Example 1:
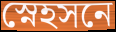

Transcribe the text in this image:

স্নেহসনে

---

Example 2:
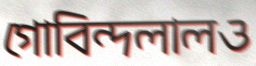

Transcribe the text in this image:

গোবিন্দলালও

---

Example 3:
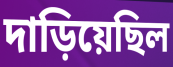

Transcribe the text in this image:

দাড়িয়েছিল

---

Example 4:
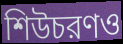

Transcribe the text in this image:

শিউচরণও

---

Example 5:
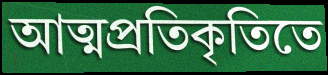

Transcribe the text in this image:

আত্মপ্রতিকৃতিতে